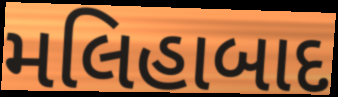
મલિહાબાદ